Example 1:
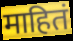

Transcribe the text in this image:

माहितं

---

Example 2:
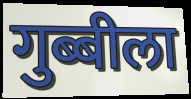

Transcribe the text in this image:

गुब्बीला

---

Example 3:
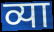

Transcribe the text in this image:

व्या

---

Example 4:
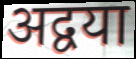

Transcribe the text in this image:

अद्वया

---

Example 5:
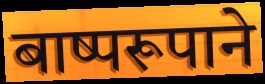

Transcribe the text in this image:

बाष्परूपाने